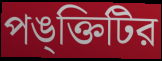
পঙ্‌ক্তিটির